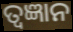
ତ୍ୱଜ୍ଞାନ